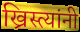
ख्रिस्त्यांनी